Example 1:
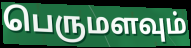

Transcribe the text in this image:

பெருமளவும்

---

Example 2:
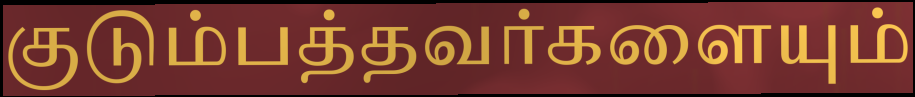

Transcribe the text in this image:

குடும்பத்தவர்களையும்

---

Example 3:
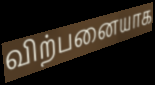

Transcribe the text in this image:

விற்பனையாக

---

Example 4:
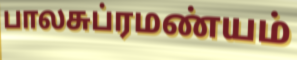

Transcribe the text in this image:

பாலசுப்ரமண்யம்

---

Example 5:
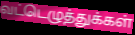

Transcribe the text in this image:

வட்டெழுத்துக்கள்